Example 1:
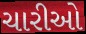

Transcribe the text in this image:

ચારીઓ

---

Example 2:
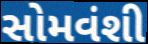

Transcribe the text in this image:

સોમવંશી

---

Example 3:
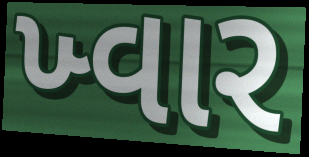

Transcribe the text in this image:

ખ્વાર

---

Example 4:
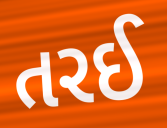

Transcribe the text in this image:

તરઈ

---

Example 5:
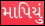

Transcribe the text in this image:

માપિયું